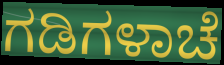
ಗಡಿಗಳಾಚೆ